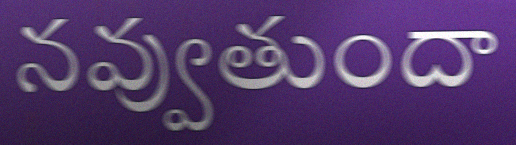
నవ్వుతుందా